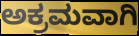
ಅಕ್ರಮವಾಗಿ